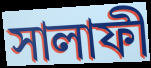
সালাফী